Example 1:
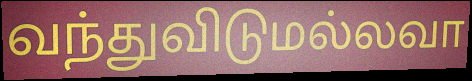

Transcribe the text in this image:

வந்துவிடுமல்லவா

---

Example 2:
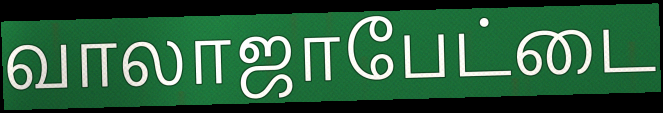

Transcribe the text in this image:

வாலாஜாபேட்டை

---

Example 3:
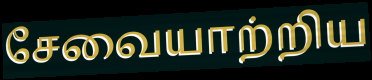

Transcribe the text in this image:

சேவையாற்றிய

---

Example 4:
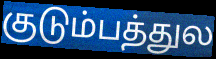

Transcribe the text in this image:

குடும்பத்துல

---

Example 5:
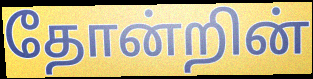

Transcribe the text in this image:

தோன்றின்